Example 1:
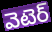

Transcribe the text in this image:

వెటెర్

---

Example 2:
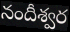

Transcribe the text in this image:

నందీశ్వర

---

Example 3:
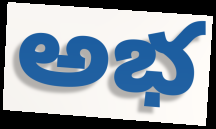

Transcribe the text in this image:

అభ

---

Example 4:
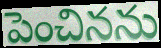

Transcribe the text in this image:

పెంచినను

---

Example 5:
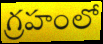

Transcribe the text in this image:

గ్రహంలో